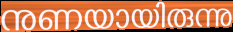
നുണയായിരുന്നു